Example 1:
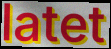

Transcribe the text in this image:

latet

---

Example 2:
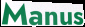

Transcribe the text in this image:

Manus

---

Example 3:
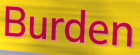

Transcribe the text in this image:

Burden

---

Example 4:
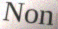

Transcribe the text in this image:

Non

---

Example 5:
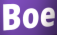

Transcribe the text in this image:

Boe